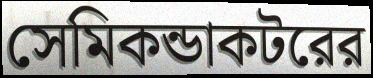
সেমিকন্ডাকটরের